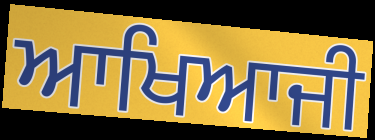
ਆਖਿਆਜੀ